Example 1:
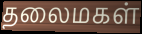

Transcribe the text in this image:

தலைமகள்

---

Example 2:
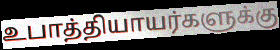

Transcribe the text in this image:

உபாத்தியாயர்களுக்கு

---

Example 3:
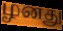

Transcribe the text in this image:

ழனது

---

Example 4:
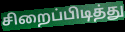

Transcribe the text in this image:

சிறைப்பிடித்து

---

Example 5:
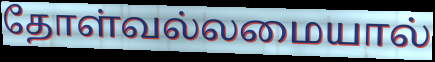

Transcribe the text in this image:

தோள்வல்லமையால்